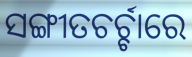
ସଙ୍ଗୀତଚର୍ଚ୍ଚାରେ